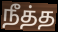
நீத்த